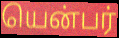
யென்பர்